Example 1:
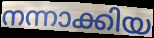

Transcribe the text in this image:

നന്നാക്കിയ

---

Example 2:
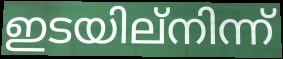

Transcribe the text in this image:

ഇടയില്നിന്ന്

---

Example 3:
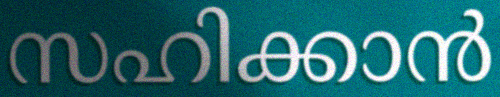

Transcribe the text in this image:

സഹിക്കാൻ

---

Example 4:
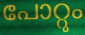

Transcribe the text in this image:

പോറ്റും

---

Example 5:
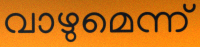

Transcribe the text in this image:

വാഴുമെന്ന്